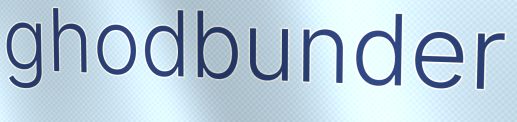
ghodbunder